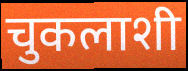
चुकलाशी